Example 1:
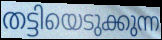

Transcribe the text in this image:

തട്ടിയെടുക്കുന്ന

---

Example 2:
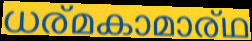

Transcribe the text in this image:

ധര്മകാമാര്ഥ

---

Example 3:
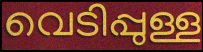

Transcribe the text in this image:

വെടിപ്പുള്ള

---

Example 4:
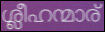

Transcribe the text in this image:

ശ്ലീഹന്മാര്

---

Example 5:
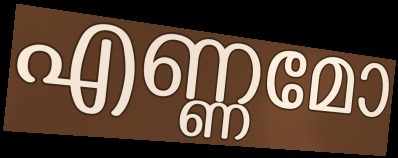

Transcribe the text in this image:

എണ്ണമോ